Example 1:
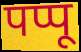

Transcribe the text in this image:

पप्पू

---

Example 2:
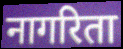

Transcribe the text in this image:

नागरिता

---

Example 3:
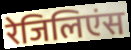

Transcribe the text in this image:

रेजिलिएंस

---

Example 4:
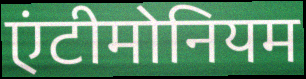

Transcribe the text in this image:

एंटीमोनियम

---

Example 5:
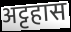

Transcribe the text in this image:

अट्टहास